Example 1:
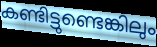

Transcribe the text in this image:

കണ്ടിട്ടുണ്ടെങ്കിലും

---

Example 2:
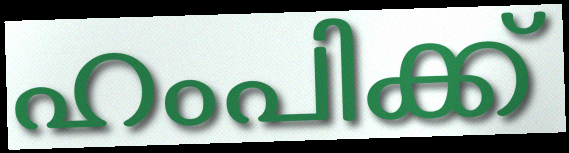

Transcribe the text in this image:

ഹംപിക്ക്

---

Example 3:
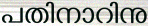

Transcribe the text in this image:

പതിനാറിനു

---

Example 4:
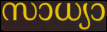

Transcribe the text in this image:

സാധ്യാ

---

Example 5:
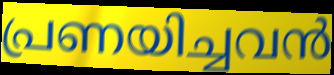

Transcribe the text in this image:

പ്രണയിച്ചവൻ